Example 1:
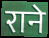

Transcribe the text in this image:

राने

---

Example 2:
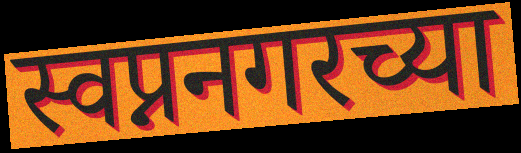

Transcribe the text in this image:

स्वप्ननगरच्या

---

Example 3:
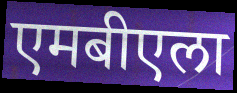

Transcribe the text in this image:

एमबीएला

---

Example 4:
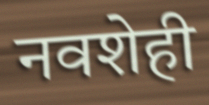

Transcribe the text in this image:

नवशेही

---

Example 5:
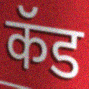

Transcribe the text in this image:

कॅड